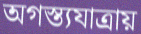
অগস্ত্যযাত্রায়